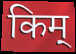
किम्